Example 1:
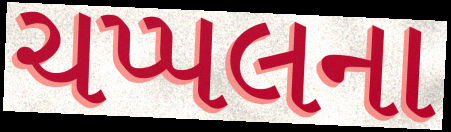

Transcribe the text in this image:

ચપ્પલના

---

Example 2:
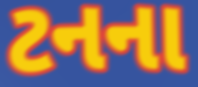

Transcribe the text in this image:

ટનના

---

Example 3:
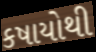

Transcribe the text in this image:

કષાયોથી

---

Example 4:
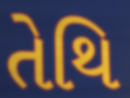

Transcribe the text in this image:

તેથિ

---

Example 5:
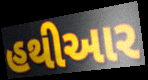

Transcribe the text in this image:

હથીઆર